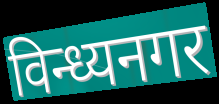
विन्ध्यनगर